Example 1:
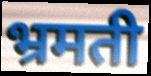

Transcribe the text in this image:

भ्रमती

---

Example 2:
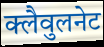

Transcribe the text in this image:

क्लैवुलनेट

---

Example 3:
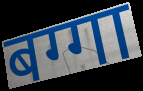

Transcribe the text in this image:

बग्गा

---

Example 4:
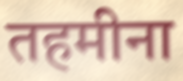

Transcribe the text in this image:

तहमीना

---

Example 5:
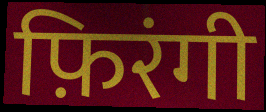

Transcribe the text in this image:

फ़िरंगी